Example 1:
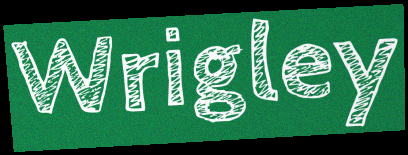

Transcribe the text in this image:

Wrigley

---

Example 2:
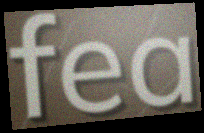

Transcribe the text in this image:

fea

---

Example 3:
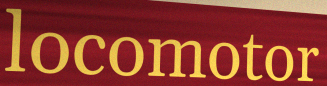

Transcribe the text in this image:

locomotor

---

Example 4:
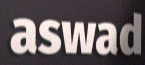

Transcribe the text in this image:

aswad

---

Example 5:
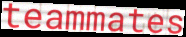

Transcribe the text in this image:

teammates